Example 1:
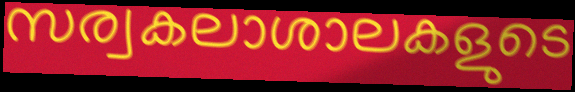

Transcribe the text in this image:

സര്വകലാശാലകളുടെ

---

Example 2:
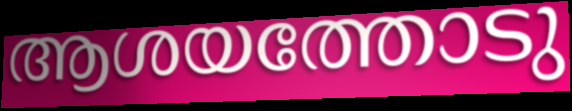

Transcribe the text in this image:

ആശയത്തോടു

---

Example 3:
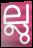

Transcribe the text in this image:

ല്ലു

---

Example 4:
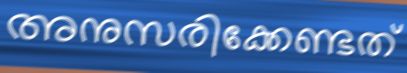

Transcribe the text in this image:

അനുസരിക്കേണ്ടത്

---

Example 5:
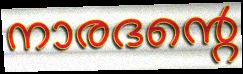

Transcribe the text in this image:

നാരദന്റെ